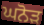
ਘਨੋੜ